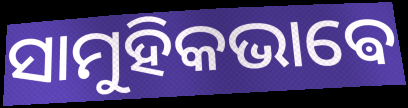
ସାମୁହିକଭାଵେ